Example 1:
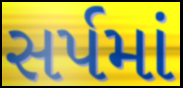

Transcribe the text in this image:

સર્પમાં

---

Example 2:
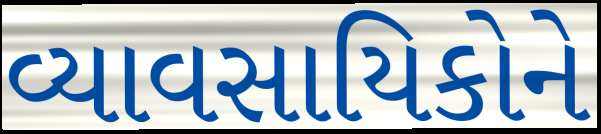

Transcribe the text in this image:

વ્યાવસાયિકોને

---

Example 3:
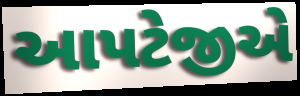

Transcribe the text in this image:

આપટેજીએ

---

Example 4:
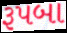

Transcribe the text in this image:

રૂપબા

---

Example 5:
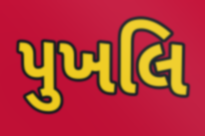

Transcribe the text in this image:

પુખલિ